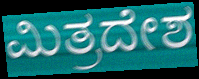
ಮಿತ್ರದೇಶ